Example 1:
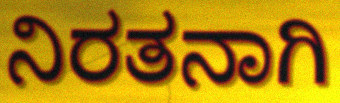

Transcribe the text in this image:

ನಿರತನಾಗಿ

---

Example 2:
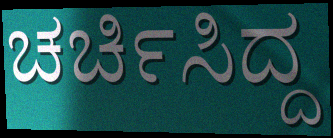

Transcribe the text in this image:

ಚರ್ಚಿಸಿದ್ದ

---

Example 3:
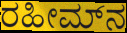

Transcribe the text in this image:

ರಹೀಮ್‌ನ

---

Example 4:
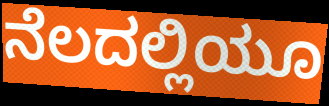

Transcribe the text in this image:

ನೆಲದಲ್ಲಿಯೂ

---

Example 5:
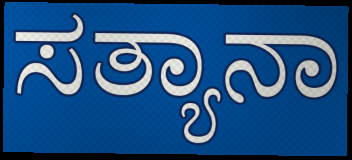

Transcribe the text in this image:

ಸತ್ಯಾನಾ